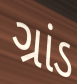
ગ્રાંડ